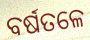
ବର୍ଷତଳେ